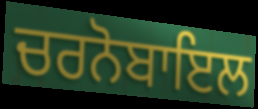
ਚਰਨੋਬਾਇਲ